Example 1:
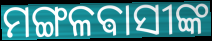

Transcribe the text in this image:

ମଙ୍ଗଳଵାସୀଙ୍କ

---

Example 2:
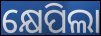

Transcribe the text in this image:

କ୍ଷେପିଲା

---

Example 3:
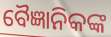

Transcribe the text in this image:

ବୈଜ୍ଞାନିକଙ୍କ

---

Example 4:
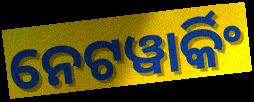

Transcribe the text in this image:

ନେଟୱାର୍କିଂ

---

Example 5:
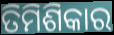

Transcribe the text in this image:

ତିମିଶିକାର